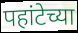
पहांटेच्या